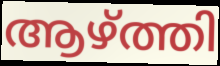
ആഴ്ത്തി